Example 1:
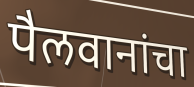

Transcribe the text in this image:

पैलवानांचा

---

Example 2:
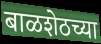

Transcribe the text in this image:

बाळशेठच्या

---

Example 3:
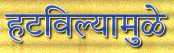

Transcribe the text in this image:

हटविल्यामुळे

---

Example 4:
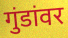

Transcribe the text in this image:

गुंडांवर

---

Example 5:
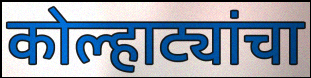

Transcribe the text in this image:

कोल्हाट्यांचा